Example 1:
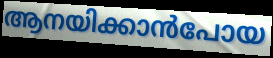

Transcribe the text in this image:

ആനയിക്കാൻപോയ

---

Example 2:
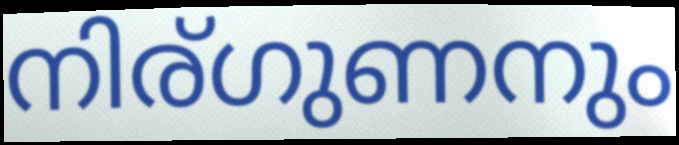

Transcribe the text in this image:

നിര്ഗുണനും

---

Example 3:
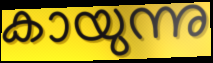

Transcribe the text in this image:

കായുന്നു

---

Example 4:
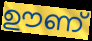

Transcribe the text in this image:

ഊണ്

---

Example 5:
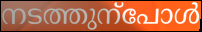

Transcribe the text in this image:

നടത്തുന്പോൾ